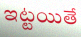
ఇట్టయితే